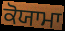
ਕੋਯਾਮਾ